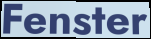
Fenster